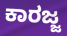
ಕಾರಜ್ಜ